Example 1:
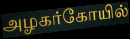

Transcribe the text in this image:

அழகர்கோயில்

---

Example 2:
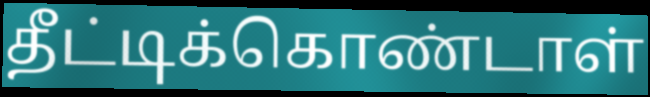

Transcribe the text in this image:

தீட்டிக்கொண்டாள்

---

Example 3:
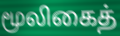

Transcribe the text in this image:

மூலிகைத்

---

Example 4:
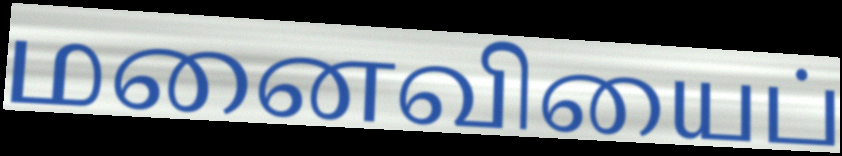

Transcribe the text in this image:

மனைவியைப்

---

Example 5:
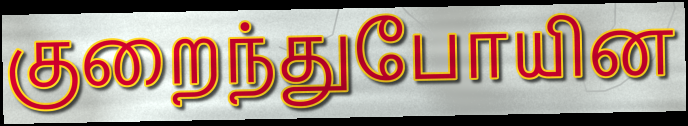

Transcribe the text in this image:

குறைந்துபோயின